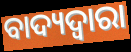
ବାଦ୍ୟଦ୍ୱାରା